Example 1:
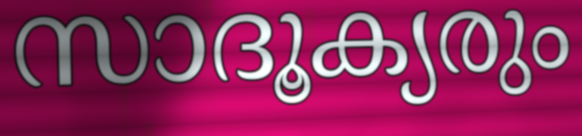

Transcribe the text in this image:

സാദൂക്യരും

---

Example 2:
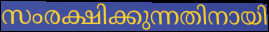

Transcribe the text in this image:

സംരക്ഷിക്കുന്നതിനായി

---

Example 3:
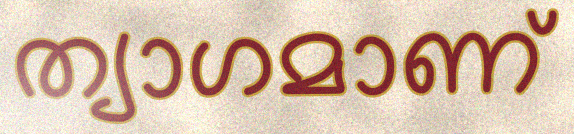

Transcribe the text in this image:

ത്യാഗമാണ്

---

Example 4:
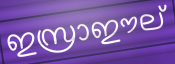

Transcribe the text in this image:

ഇസ്രാഈല്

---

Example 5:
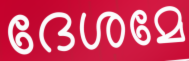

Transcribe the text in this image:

ദേശമേ